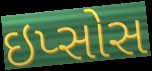
ઇપ્સોસ